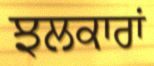
ਝਲਕਾਰਾਂ